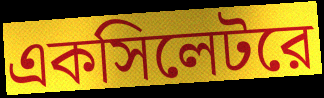
একসিলেটরে